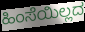
ಹಿಂಸೆಯಿಲ್ಲದ